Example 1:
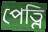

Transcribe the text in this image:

পেত্নি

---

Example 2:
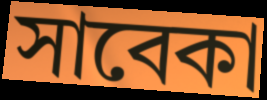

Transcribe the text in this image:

সাবেকা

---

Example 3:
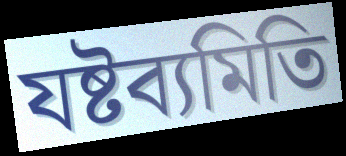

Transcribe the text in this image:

যষ্টব্যমিতি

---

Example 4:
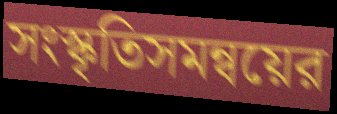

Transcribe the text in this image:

সংস্কৃতিসমন্বয়ের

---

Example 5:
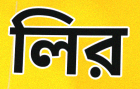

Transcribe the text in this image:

লির